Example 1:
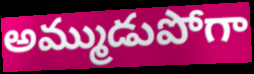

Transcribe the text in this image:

అమ్ముడుపోగా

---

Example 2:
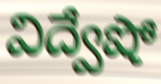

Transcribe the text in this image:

విద్వేషో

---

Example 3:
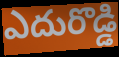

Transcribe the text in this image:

ఎదురొడ్డి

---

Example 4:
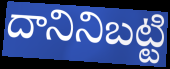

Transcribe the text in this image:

దానినిబట్టి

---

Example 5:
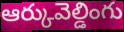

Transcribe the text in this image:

ఆర్కువెల్డింగు